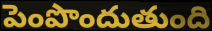
పెంపొందుతుంది